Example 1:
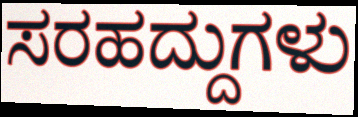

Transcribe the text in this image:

ಸರಹದ್ದುಗಳು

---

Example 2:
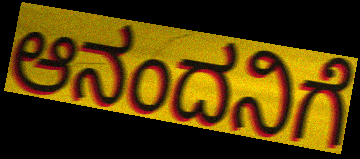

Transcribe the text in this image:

ಆನಂದನಿಗೆ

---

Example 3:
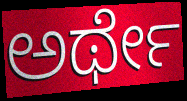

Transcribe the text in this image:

ಅರ್ಥೇ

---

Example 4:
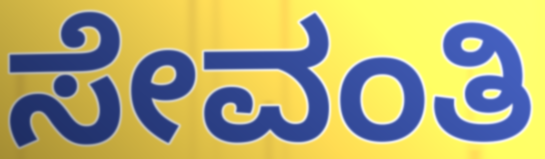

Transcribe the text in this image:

ಸೇವಂತಿ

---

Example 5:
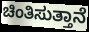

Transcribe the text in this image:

ಚಿಂತಿಸುತ್ತಾನೆ